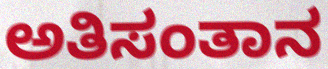
ಅತಿಸಂತಾನ